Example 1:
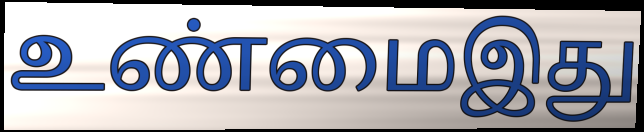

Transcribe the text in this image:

உண்மைஇது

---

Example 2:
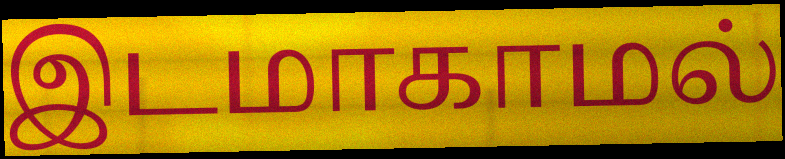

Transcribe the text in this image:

இடமாகாமல்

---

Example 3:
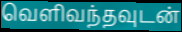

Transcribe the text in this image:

வெளிவந்தவுடன்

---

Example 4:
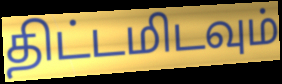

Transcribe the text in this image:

திட்டமிடவும்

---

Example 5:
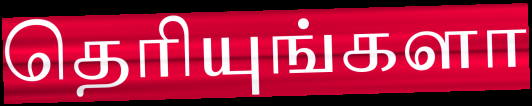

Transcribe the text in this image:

தெரியுங்களா